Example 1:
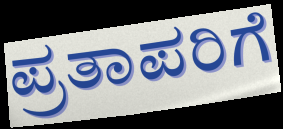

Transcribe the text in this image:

ಪ್ರತಾಪರಿಗೆ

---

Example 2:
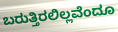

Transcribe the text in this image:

ಬರುತ್ತಿರಲಿಲ್ಲವೆಂದೂ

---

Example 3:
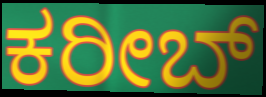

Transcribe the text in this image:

ಕರೀಬ್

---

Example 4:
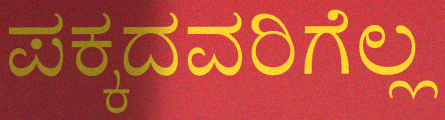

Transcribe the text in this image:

ಪಕ್ಕದವರಿಗೆಲ್ಲ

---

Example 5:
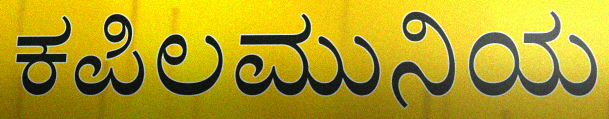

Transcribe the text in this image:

ಕಪಿಲಮುನಿಯ